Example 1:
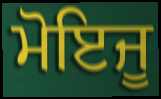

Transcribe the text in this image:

ਮੋਇਜੂ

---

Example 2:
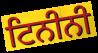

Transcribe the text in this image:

ਟਿਨੀਨੀ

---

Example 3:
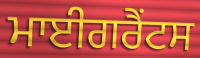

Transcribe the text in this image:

ਮਾਈਗਰੈਂਟਸ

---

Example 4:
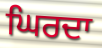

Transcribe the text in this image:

ਘਿਰਦਾ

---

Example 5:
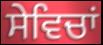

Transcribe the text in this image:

ਸੇਵਿਚਾਂ